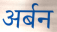
अर्बन